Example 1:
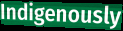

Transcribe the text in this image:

Indigenously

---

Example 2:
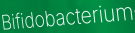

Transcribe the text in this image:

Bifidobacterium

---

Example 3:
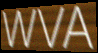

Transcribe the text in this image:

WVA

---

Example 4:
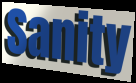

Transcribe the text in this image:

Sanity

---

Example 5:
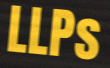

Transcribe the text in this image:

LLPs